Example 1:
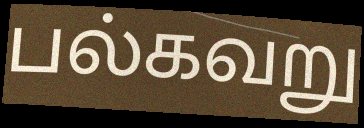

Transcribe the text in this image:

பல்கவறு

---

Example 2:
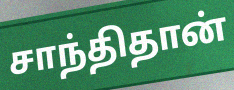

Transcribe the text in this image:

சாந்திதான்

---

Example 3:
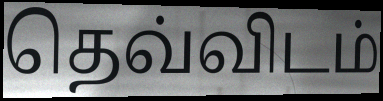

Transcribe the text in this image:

தெவ்விடம்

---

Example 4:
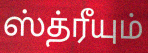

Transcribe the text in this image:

ஸ்த்ரீயும்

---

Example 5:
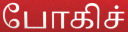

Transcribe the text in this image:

போகிச்